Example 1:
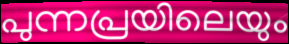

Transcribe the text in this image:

പുന്നപ്രയിലെയും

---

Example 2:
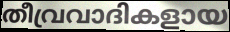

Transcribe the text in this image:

തീവ്രവാദികളായ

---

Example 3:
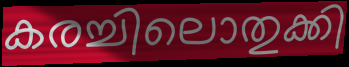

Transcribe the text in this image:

കരച്ചിലൊതുക്കി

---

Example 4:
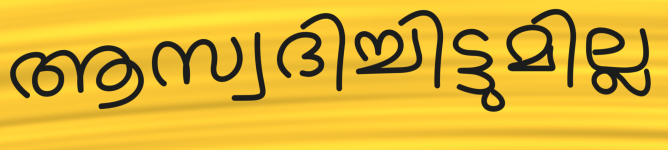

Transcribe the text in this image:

ആസ്വദിച്ചിട്ടുമില്ല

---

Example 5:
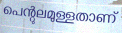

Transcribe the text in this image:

പെന്റുലമുള്ളതാണ്